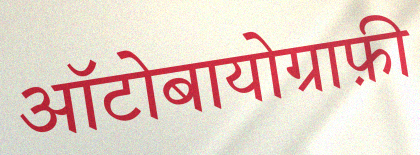
ऑटोबायोग्राफ़ी